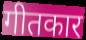
गीतकार